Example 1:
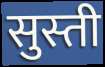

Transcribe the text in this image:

सुस्‍ती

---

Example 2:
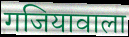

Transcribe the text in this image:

गजियावाला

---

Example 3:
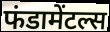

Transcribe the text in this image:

फंडामेंटल्स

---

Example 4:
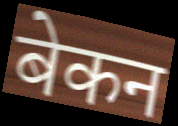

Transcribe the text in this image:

बेकन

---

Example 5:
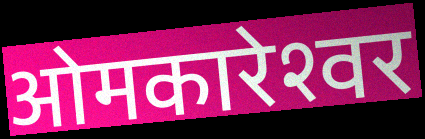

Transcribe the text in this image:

ओमकारेश्वर